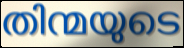
തിന്മയുടെ